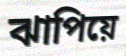
ঝাপিয়ে